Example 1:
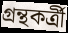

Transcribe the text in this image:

গ্রন্থকর্ত্রী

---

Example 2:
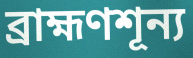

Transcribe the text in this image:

ব্রাহ্মণশূন্য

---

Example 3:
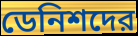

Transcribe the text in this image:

ডেনিশদের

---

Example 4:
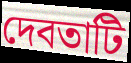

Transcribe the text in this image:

দেবতাটি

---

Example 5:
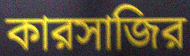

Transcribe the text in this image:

কারসাজির